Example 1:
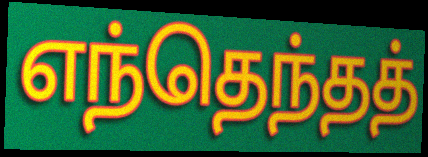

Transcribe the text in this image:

எந்தெந்தத்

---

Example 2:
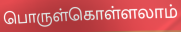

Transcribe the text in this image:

பொருள்கொள்ளலாம்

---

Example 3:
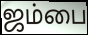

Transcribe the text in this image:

ஜம்பை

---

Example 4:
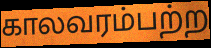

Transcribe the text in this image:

காலவரம்பற்ற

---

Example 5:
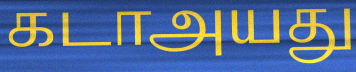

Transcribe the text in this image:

கடாஅயது